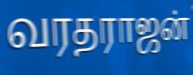
வரதராஜன்